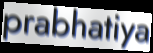
prabhatiya